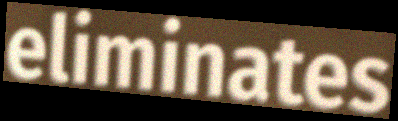
eliminates